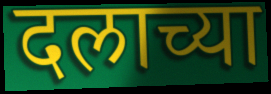
दलाच्या